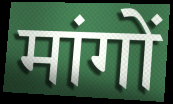
मांगों